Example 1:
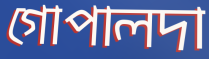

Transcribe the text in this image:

গোপালদা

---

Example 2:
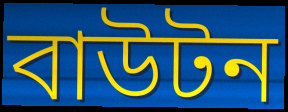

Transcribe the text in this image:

বাউটন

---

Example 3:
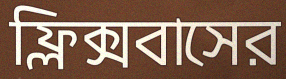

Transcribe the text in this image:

ফ্লিক্সবাসের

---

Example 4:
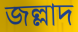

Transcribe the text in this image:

জল্লাদ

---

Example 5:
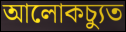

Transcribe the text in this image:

আলোকচ্যুত